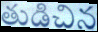
తుడిచిన